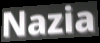
Nazia